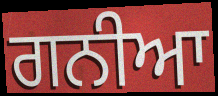
ਗਨੀਆ